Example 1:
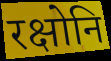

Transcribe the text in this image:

रक्षोनि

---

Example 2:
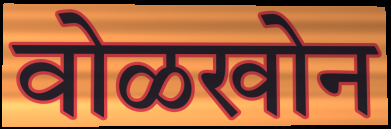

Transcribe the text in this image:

वोळखोन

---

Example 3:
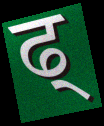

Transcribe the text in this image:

ढ्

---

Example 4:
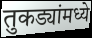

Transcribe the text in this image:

तुकड्यांमध्ये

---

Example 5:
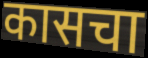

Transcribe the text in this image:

कासचा